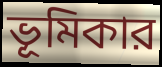
ভূমিকার